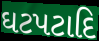
ઘટપટાદિ